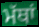
ਮੱਥਾਂ